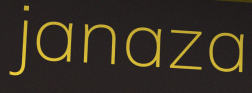
janaza